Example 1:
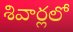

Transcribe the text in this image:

శివార్లలో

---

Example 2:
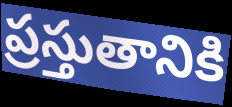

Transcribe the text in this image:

ప్రస్తుతానికి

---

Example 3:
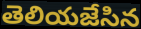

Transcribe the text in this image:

తెలియజేసిన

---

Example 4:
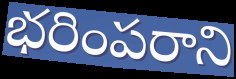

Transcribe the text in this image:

భరింపరాని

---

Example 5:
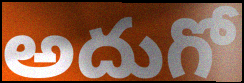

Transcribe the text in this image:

అదుగో